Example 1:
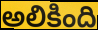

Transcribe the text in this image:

అలికింది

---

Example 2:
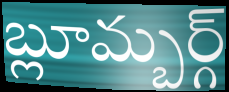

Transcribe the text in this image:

బ్లూమ్బర్గ్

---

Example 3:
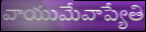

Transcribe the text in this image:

వాయుమేవాప్యేతి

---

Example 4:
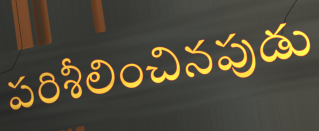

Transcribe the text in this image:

పరిశీలించినపుడు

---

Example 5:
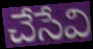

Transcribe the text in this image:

చేసేవి